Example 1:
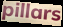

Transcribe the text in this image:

pillars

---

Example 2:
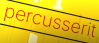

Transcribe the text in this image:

percusserit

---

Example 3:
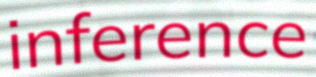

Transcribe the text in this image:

inference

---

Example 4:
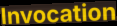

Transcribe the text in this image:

Invocation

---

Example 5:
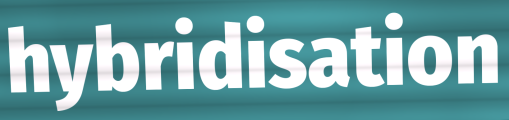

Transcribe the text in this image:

hybridisation